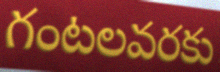
గంటలవరకు